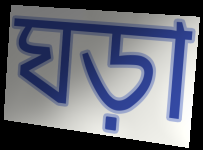
ঘড়া